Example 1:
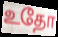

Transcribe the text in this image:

உதோ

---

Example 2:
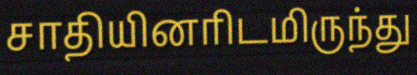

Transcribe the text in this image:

சாதியினரிடமிருந்து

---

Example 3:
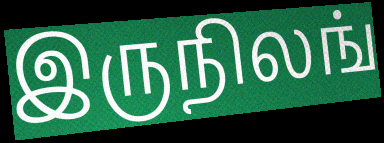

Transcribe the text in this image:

இருநிலங்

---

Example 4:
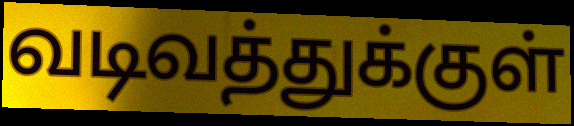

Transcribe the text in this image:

வடிவத்துக்குள்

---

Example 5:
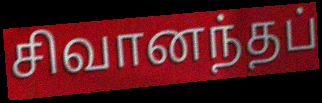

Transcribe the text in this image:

சிவானந்தப்